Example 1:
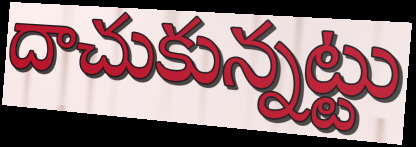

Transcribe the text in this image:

దాచుకున్నట్టు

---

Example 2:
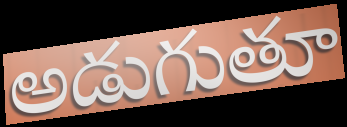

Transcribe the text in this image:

అడుగుతూ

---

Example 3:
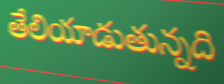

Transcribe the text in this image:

తేలియాడుతున్నది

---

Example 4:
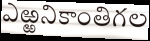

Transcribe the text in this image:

ఎఱ్ఱనికాంతిగల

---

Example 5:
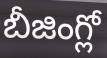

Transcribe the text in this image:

బీజింగ్లో